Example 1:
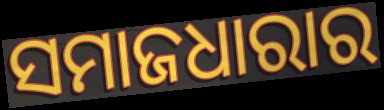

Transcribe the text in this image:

ସମାଜଧାରାର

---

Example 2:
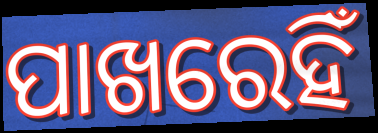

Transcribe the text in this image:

ପାଖରେହିଁ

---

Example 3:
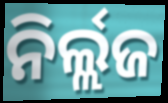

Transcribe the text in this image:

ନିର୍ଲ୍ଲଜ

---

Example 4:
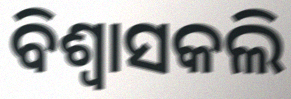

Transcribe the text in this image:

ବିଶ୍ଵାସକଲି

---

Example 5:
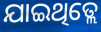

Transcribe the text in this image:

ଯାଇଥିତ୍ଲେ